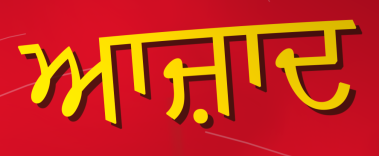
ਆਜ਼ਾਦ